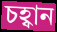
চহ্বান